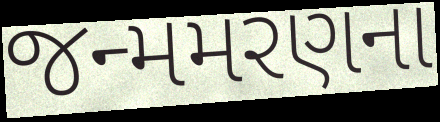
જન્મમરણના